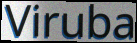
Viruba